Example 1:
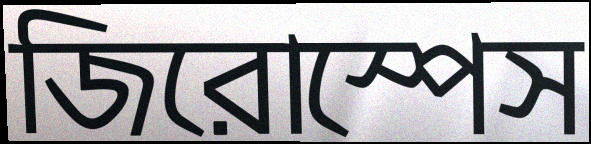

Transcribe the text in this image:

জিরোস্পেস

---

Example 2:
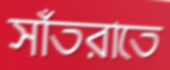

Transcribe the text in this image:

সাঁতরাতে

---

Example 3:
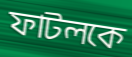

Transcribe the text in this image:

ফাটলকে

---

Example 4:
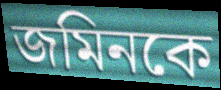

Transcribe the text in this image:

জমিনকে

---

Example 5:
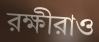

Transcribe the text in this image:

রক্ষীরাও